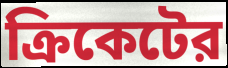
ক্রিকেটের